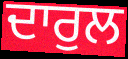
ਦਾਰੁਲ